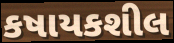
કષાયકશીલ